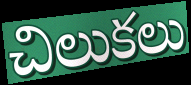
చిలుకలు